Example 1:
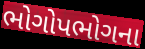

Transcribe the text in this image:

ભોગોપભોગના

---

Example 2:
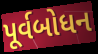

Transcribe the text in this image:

પૂર્વબોધન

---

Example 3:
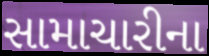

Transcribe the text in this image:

સામાચારીના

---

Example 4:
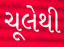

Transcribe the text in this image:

ચૂલેથી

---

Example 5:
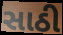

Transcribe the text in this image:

સાઠી